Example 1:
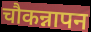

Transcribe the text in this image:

चौकन्नापन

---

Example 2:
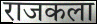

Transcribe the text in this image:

राजकला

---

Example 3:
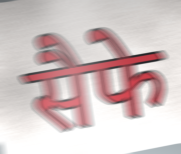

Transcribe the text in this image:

सैफे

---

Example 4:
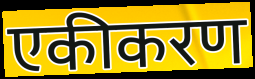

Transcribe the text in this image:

एकीकरण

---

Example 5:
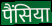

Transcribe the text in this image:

पैंसिया